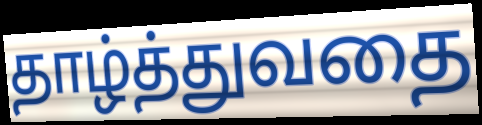
தாழ்த்துவதை